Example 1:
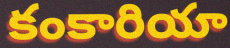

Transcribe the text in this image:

కంకారియా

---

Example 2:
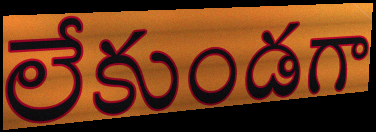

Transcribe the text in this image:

లేకుండగా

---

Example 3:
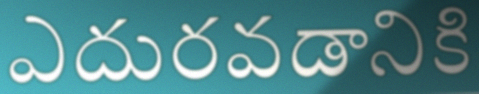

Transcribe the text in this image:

ఎదురవడానికి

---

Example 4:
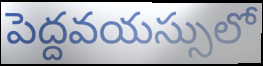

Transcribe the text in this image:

పెద్దవయస్సులో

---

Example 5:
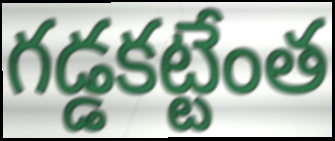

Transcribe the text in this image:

గడ్డకట్టేంత